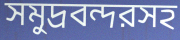
সমুদ্রবন্দরসহ